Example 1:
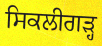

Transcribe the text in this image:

ਸਿਕਲੀਗੜ੍ਹ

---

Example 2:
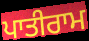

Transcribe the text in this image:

ਪਾਤੀਰਾਮ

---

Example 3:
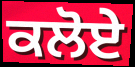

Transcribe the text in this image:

ਕਲੋਏ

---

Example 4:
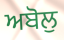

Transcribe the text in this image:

ਅਬੋਲੁ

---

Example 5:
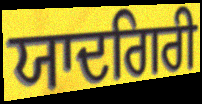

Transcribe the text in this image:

ਯਾਦਗਿਰੀ